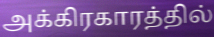
அக்கிரகாரத்தில்